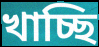
খাচ্ছি